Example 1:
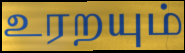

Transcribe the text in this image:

உரறயும்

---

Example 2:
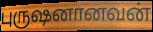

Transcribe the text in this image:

புருஷனானவன்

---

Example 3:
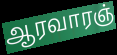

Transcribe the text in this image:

ஆரவாரஞ்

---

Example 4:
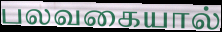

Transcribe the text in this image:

பலவகையால்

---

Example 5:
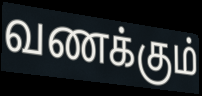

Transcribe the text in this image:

வணக்கும்